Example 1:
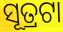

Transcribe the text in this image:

ସୂତ୍ରଟା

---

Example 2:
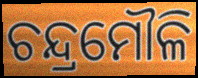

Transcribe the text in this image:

ଚନ୍ଦ୍ରମୌଳି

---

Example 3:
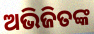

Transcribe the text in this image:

ଅଭିଜିତଙ୍କ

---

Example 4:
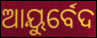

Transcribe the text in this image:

ଆୟୁର୍ବେଦ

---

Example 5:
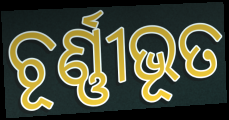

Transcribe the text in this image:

ଚୂର୍ଣ୍ଣୀଭୂତ